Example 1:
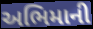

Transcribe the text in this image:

અભિમાની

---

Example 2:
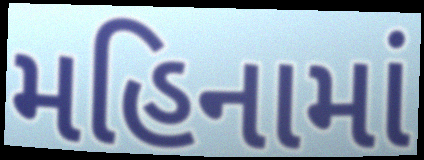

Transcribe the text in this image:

મહિનામાં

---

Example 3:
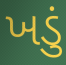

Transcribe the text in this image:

ખડું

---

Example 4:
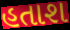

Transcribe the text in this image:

હતાશ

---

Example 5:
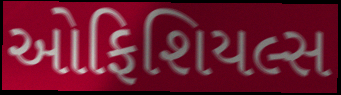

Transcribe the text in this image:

ઓફિશિયલ્સ